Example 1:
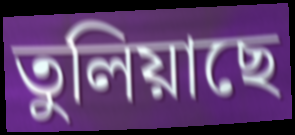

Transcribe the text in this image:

তুলিয়াছে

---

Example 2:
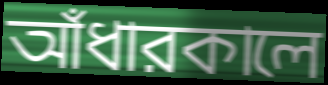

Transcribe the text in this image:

আঁধারকালে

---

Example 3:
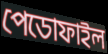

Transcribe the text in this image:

পেডোফাইল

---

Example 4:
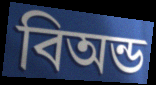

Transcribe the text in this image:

বিঅন্ড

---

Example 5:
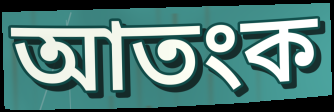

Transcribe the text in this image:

আতংক